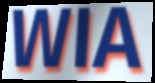
WIA